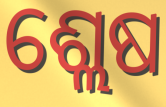
ଶ୍ଲେଷ